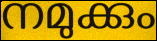
നമുക്കും